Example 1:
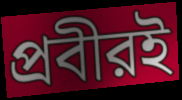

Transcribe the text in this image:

প্রবীরই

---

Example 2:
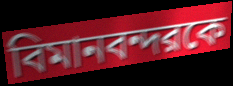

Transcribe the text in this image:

বিমানবন্দরকে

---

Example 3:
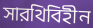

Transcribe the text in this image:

সারথিবিহীন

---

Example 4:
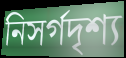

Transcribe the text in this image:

নিসর্গদৃশ্য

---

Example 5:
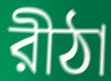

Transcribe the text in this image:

রীঠা